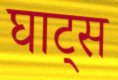
घाट्स